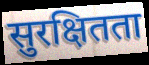
सुरक्षितता